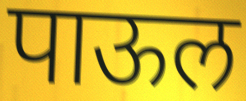
पाऊल